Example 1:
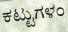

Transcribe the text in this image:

ಕಟ್ಟುಗಳಂ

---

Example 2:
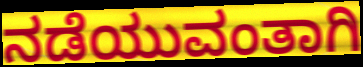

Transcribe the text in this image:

ನಡೆಯುವಂತಾಗಿ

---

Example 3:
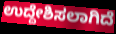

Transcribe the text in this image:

ಉದ್ದೇಶಿಸಲಾಗಿದೆ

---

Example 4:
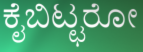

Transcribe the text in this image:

ಕೈಬಿಟ್ಟರೋ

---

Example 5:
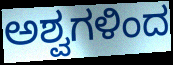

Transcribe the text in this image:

ಅಶ್ವಗಳಿಂದ